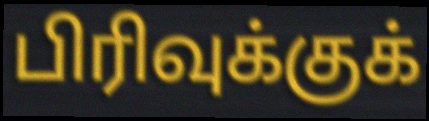
பிரிவுக்குக்